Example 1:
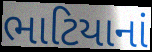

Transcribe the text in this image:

ભાટિયાનાં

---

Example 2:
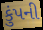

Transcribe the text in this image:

કુંપની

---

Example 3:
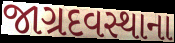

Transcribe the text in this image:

જાગ્રદવસ્થાના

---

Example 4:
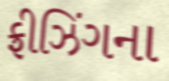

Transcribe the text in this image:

ફ્રીઝિંગના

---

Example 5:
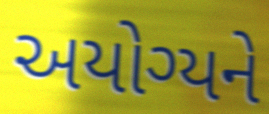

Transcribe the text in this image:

અયોગ્યને